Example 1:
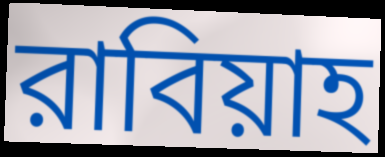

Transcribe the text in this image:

রাবিয়াহ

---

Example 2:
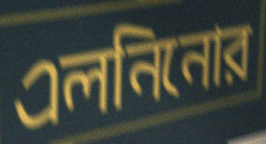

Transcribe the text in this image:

এলনিনোর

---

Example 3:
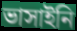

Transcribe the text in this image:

ভাসাইনি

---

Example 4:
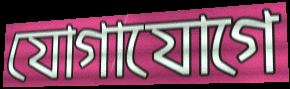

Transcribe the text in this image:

যোগাযোগে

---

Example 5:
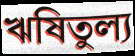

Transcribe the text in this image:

ঋষিতুল্য